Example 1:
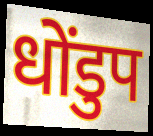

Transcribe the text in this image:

धोंडुप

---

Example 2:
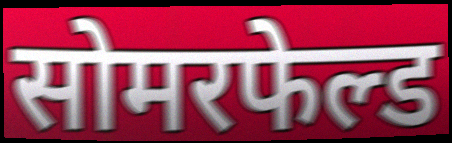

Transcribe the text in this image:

सोमरफेल्ड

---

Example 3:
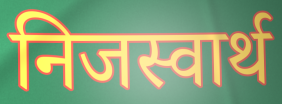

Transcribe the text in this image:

निजस्वार्थ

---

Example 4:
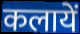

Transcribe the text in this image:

कलायें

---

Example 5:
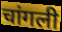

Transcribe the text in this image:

चांगली